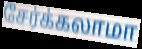
சேர்க்கலாமா